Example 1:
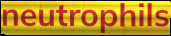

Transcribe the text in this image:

neutrophils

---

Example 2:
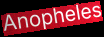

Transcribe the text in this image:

Anopheles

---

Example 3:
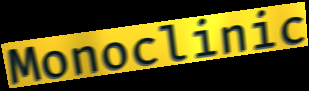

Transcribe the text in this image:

Monoclinic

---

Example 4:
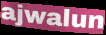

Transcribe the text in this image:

ajwalun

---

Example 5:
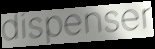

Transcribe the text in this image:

dispenser